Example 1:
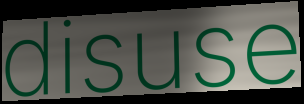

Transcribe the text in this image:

disuse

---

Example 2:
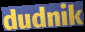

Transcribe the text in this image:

dudnik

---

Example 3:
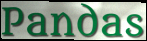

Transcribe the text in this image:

Pandas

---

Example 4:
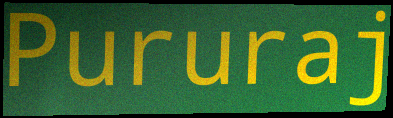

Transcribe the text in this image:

Pururaj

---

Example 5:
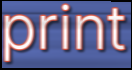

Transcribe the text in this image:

print